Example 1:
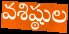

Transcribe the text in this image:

వశిష్ఠుల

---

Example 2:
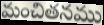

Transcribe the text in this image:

మంచితనము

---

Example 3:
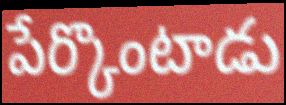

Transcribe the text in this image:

పేర్కొంటాడు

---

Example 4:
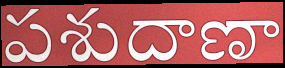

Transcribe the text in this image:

పశుదాణా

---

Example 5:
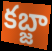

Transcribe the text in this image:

కబ్జా